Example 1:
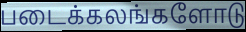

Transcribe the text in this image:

படைக்கலங்களோடு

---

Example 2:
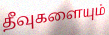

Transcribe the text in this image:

தீவுகளையும்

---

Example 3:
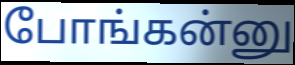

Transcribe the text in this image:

போங்கன்னு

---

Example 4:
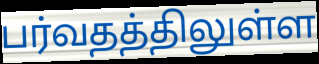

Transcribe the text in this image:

பர்வதத்திலுள்ள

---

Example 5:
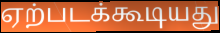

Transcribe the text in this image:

ஏற்படக்கூடியது